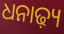
ଧନାଢ଼୍ୟ